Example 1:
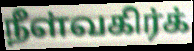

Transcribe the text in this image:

நீள்வகிர்க்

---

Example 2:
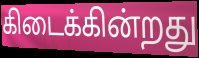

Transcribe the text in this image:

கிடைக்கின்றது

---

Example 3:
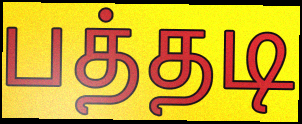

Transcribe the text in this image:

பத்தடி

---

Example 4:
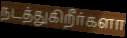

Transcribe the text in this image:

நடத்துகிறீர்களா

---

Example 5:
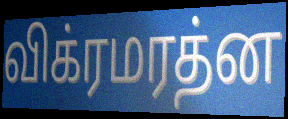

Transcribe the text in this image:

விக்ரமரத்ன